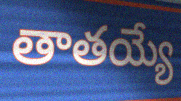
తాతయ్యే